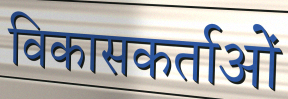
विकासकर्ताओं